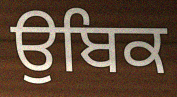
ਉਬਿਕ